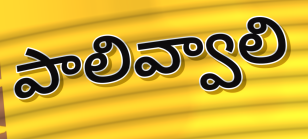
పాలివ్వాలి